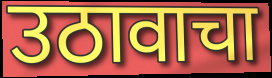
उठावाचा